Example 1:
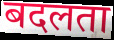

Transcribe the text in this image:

बदलता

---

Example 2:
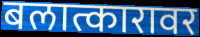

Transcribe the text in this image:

बलात्कारावर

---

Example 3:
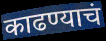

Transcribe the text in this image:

काढण्याचं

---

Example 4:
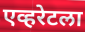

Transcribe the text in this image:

एव्हरेटला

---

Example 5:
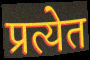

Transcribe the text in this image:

प्रत्येत